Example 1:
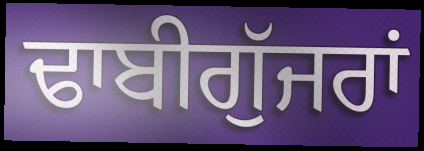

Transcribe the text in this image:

ਢਾਬੀਗੁੱਜਰਾਂ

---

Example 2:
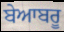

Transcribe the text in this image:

ਬੇਆਬਰੂ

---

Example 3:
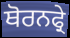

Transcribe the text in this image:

ਥੋਰਨਫ੍ਰੇ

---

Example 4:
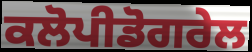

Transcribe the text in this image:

ਕਲੋਪੀਡੋਗਰੇਲ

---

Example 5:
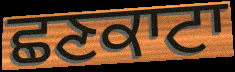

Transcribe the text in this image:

ਛਣਕਾਟਾ